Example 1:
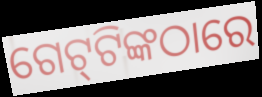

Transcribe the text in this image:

ଗେଟ୍‌ଟିଙ୍କଠାରେ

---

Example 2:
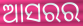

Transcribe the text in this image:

ଆସରର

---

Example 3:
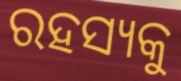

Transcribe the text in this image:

ରହସ୍ୟକୁ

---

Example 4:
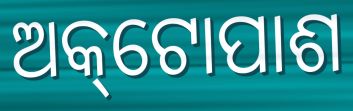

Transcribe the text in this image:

ଅକ୍‌ଟୋପାଶ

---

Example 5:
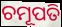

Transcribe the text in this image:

ଚମୂପତି